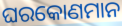
ଘରକୋଣମାନ